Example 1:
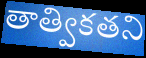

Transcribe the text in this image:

తాత్వికతని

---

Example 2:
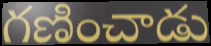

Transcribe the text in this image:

గణించాడు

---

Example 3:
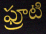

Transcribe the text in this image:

ఫ్రూటి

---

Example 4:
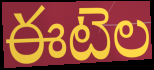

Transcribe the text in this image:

ఈటెల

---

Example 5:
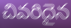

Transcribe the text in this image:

చివరిదైన